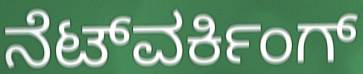
ನೆಟ್‌ವರ್ಕಿಂಗ್